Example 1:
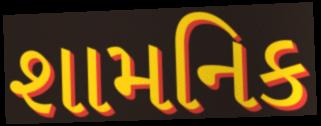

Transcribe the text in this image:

શામનિક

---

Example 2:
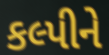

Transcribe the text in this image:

કલ્પીને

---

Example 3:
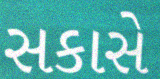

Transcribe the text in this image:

સકાસે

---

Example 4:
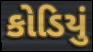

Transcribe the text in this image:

કોડિયું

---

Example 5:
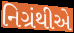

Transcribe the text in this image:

નિગ્રંથીએ